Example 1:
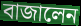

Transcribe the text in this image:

বাজালেন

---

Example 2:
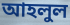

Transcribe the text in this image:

আহলুল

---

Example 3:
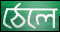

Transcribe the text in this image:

ঠেলে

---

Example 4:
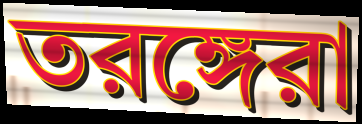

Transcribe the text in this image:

তরঙ্গেরা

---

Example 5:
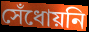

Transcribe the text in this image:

সেঁধোয়নি